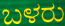
ಬಳರು